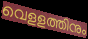
വെളളത്തിനും